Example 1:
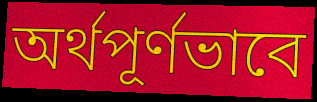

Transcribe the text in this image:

অর্থপূর্ণভাবে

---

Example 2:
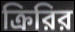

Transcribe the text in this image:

ক্রিরির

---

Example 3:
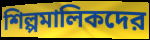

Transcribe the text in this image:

শিল্পমালিকদের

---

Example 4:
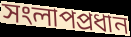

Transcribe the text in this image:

সংলাপপ্রধান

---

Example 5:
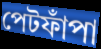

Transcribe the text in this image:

পেটফাঁপা